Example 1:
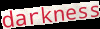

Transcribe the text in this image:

darkness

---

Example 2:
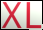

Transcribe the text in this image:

XL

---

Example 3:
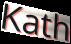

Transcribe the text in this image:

Kath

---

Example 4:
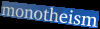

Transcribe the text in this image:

monotheism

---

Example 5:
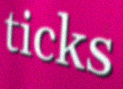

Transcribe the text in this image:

ticks